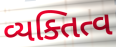
વ્યક્તિત્વ